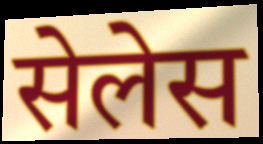
सेलेस